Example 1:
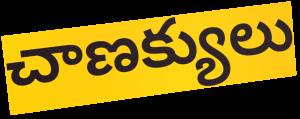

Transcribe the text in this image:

చాణక్యులు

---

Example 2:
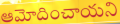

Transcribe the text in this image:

ఆమోదించాయని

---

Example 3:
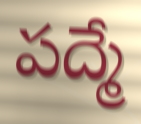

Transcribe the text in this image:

పద్మే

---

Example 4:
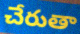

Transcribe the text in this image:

చేరుతా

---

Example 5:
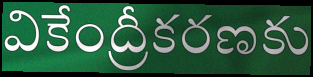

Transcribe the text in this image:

వికేంద్రీకరణకు